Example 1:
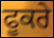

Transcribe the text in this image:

ਫੂਕਰੇ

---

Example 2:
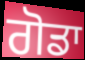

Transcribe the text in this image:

ਗੋਡਾ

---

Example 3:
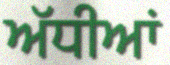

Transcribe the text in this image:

ਅੱਧੀਆਂ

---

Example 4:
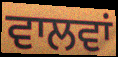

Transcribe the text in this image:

ਵਾਲਵਾਂ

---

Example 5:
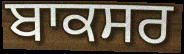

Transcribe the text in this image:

ਬਾਕਸਰ